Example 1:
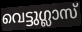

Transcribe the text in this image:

വെട്ടുഗ്ലാസ്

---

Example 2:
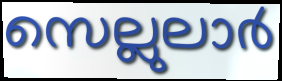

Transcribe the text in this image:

സെല്ലുലാർ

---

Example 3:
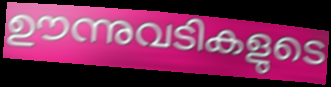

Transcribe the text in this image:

ഊന്നുവടികളുടെ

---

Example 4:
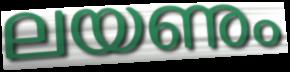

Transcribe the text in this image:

ലയണും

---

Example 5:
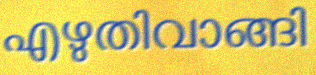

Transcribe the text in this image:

എഴുതിവാങ്ങി